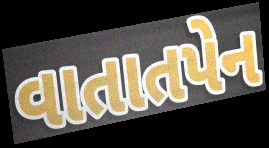
વાતાતપેન